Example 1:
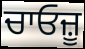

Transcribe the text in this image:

ਚਾਓਜ਼ੂ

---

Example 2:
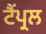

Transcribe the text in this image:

ਟੈਂਪ੍ਰਲ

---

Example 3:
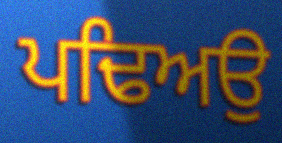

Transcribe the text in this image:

ਪਢਿਅਉ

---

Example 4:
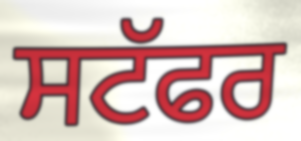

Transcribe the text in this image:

ਸਟੱਫਰ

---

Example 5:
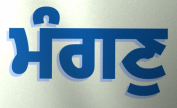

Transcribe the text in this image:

ਮੰਗਣੁ